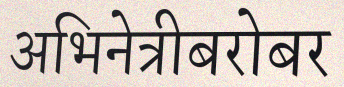
अभिनेत्रीबरोबर